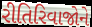
રીતિરિવાજોને